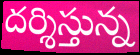
దర్శిస్తున్న